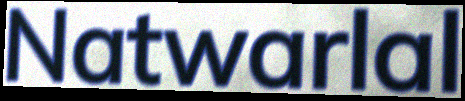
Natwarlal